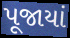
પૂજાયાં